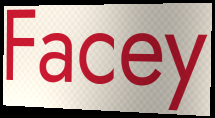
Facey